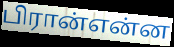
பிரான்என்ன